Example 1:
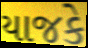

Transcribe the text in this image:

યાજકે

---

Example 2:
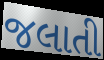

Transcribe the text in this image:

જલાતી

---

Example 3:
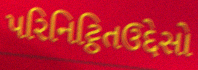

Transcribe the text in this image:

પરિનિટ્ઠિતઉદ્દેસો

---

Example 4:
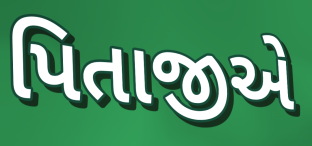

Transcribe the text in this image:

પિતાજીએ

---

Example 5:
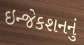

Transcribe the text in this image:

ઇન્જેકશનનું